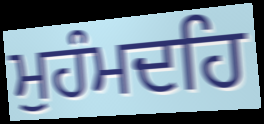
ਮੁਹੰਮਦਹਿ